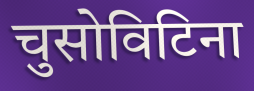
चुसोविटिना